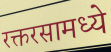
रक्तरसामध्ये